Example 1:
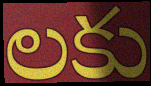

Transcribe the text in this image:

లకు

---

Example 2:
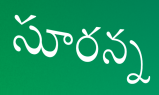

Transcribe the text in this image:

సూరన్న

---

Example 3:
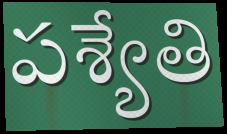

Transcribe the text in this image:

పశ్యేతి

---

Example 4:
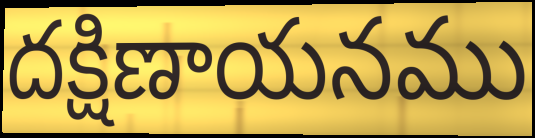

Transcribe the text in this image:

దక్షిణాయనము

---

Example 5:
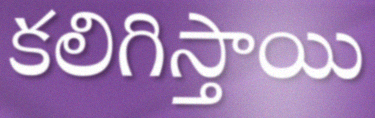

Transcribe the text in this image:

కలిగిస్తాయి